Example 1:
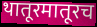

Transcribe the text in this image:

थातूरमातूरच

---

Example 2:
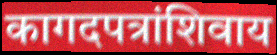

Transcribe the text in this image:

कागदपत्रांशिवाय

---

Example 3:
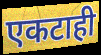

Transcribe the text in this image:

एकटाही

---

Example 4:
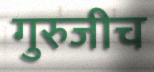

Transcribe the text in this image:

गुरुजीच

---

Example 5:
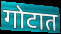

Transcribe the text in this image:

गोटात